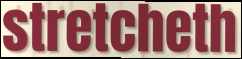
stretcheth